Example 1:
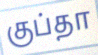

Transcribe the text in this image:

குப்தா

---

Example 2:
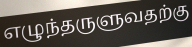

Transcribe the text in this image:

எழுந்தருளுவதற்கு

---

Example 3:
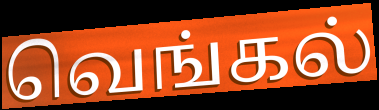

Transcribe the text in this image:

வெங்கல்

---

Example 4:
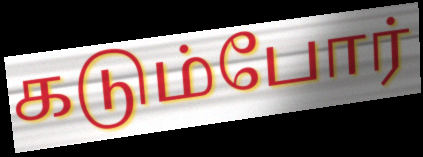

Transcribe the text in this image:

கடும்போர்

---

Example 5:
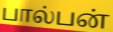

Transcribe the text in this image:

பால்பன்